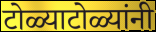
टोळ्याटोळ्यांनी